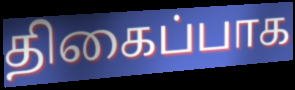
திகைப்பாக